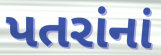
પતરાંનાં